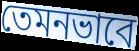
তেমনভাবে